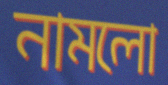
নামলো